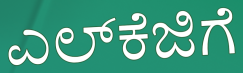
ಎಲ್‌ಕೆಜಿಗೆ